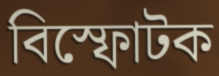
বিস্ফোটক